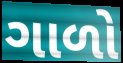
ગાળો